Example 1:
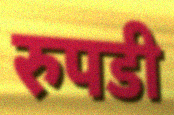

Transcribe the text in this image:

रुपडी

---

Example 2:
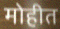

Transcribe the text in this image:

मोहीत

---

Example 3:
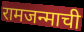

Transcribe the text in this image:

रामजन्माची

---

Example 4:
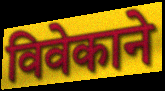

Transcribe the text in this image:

विवेकाने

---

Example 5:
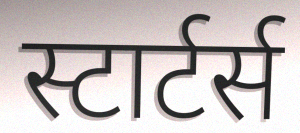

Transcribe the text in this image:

स्टार्टर्स